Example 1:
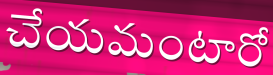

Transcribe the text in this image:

చేయమంటారో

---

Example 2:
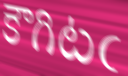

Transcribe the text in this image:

కౌగిటఁ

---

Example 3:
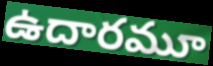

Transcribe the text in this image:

ఉదారమూ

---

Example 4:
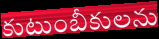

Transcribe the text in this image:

కుటుంబీకులను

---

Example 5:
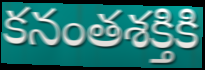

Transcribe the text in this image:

కనంతశక్తికి